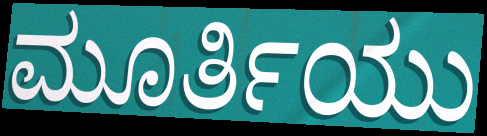
ಮೂರ್ತಿಯು